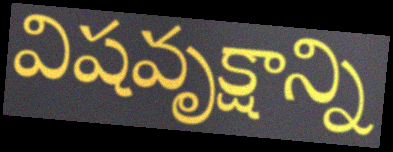
విషవృక్షాన్ని